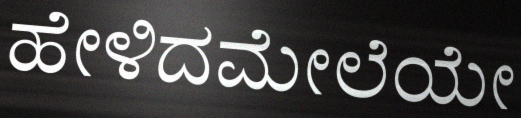
ಹೇಳಿದಮೇಲೆಯೇ